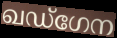
ഖഡ്ഗേന